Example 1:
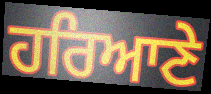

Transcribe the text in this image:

ਹਰਿਆਣੇ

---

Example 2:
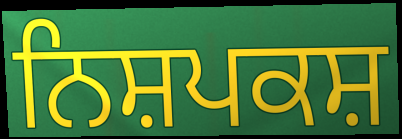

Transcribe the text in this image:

ਨਿਸ਼ਪਕਸ਼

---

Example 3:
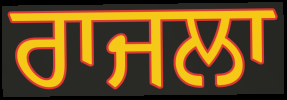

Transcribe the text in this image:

ਰਾਜਲਾ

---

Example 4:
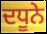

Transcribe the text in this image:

ਦਧੂਨੇ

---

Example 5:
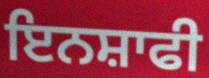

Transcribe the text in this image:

ਇਨਸ਼ਾਫੀ